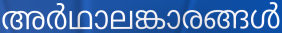
അർഥാലങ്കാരങ്ങൾ